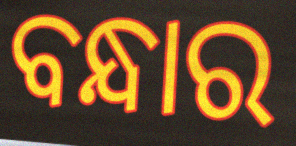
ବନ୍ଧାର